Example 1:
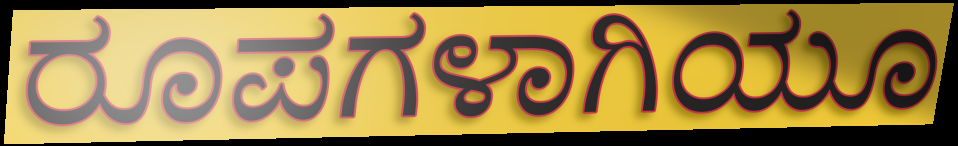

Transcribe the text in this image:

ರೂಪಗಳಾಗಿಯೂ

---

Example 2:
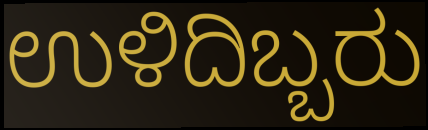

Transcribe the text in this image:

ಉಳಿದಿಬ್ಬರು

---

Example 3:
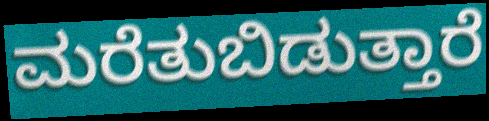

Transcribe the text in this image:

ಮರೆತುಬಿಡುತ್ತಾರೆ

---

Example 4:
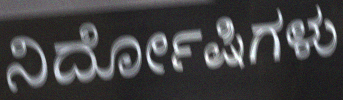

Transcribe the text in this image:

ನಿರ್ದೋಷಿಗಳು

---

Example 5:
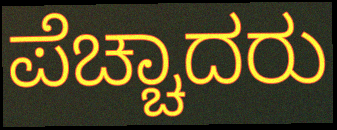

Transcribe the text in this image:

ಪೆಚ್ಚಾದರು